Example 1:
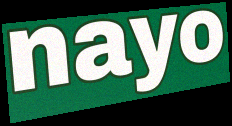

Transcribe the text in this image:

nayo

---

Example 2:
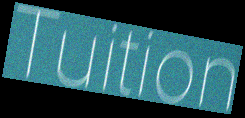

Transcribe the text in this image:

Tuition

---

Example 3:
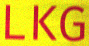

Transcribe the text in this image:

LKG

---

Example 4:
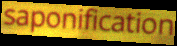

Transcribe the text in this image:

saponification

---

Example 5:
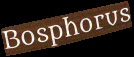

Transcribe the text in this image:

Bosphorus